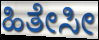
ಹಿತೇಸೀ